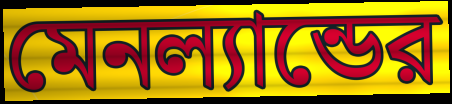
মেনল্যান্ডের